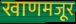
खाणमजूर